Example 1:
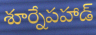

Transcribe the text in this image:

శూర్నేపహాడ్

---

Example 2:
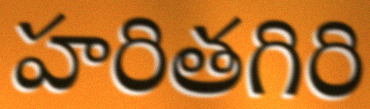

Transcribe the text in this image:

హరితగిరి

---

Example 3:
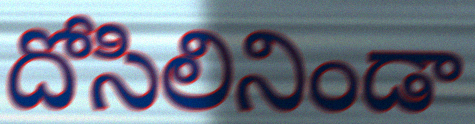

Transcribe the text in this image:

దోసిలినిండా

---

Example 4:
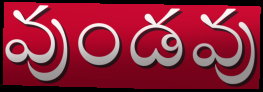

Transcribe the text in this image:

వుండవు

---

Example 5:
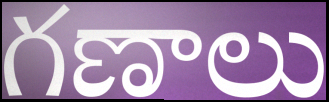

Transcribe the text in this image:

గణాలు